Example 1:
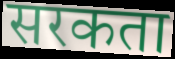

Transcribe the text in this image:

सरकता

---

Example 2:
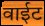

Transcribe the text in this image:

वाईट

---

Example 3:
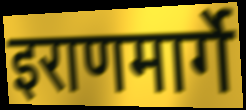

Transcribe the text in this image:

इराणमार्गे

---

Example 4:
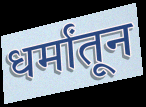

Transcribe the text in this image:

धर्मांतून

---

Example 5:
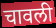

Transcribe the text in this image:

चावली